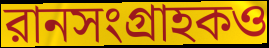
রানসংগ্রাহকও